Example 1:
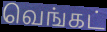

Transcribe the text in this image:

வெங்கட்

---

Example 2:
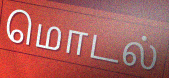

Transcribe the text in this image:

மொடல்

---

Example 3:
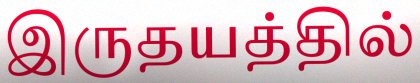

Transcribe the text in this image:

இருதயத்தில்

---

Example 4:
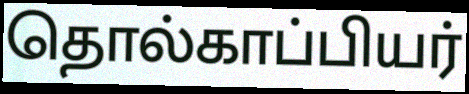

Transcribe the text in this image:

தொல்காப்பியர்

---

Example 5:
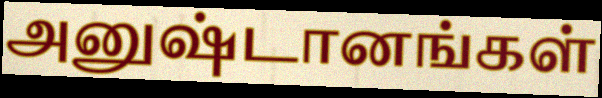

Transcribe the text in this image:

அனுஷ்டானங்கள்